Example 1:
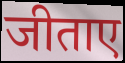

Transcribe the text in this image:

जीताए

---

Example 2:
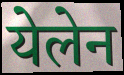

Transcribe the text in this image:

येलेन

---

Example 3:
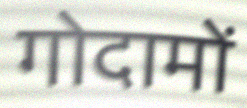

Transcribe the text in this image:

गोदामों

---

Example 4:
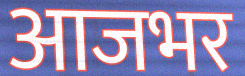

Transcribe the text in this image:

आजभर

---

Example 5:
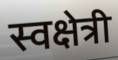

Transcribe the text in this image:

स्वक्षेत्री